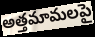
అత్తమామలపై